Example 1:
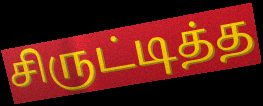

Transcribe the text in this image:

சிருட்டித்த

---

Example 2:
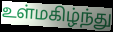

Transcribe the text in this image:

உள்மகிழ்ந்து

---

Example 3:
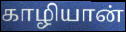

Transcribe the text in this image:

காழியான்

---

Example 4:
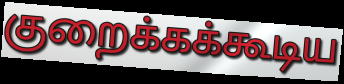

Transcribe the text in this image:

குறைக்கக்கூடிய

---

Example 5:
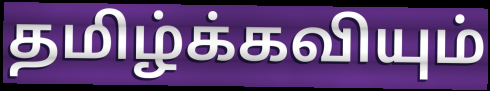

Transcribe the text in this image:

தமிழ்க்கவியும்